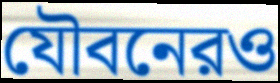
যৌবনেরও